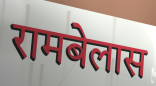
रामबेलास